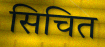
सिचित